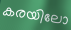
കരയിലോ